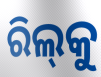
ରିଲ୍‌କୁ